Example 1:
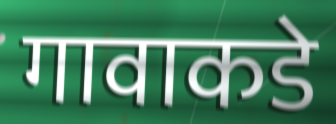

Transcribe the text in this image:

गावाकडे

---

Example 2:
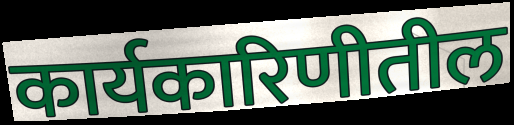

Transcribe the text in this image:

कार्यकारिणीतील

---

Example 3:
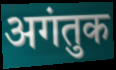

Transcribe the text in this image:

अगंतुक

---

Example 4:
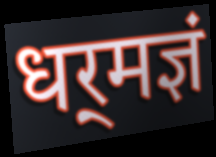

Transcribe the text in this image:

धर्मज्ञं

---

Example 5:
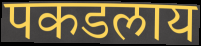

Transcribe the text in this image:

पकडलाय